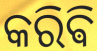
କରିଵି